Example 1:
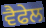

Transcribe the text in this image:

ਵੈਫੇਲ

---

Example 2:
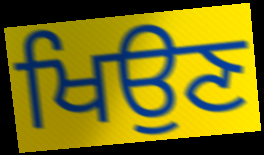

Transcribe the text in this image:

ਖਿਉਣ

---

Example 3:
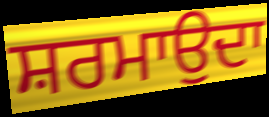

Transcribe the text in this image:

ਸ਼ਰਮਾਉਦਾ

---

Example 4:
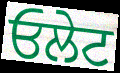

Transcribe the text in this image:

ਓਲੇਟ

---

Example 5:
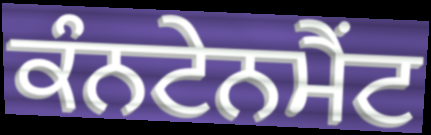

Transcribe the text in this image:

ਕੰਨਟੇਨਮੈਂਟ